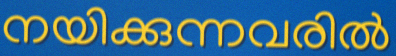
നയിക്കുന്നവരിൽ